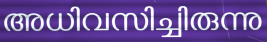
അധിവസിച്ചിരുന്നു